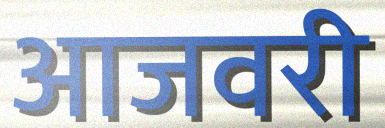
आजवरी